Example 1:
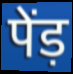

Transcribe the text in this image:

पेंड़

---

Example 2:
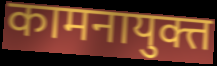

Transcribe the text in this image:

कामनायुक्त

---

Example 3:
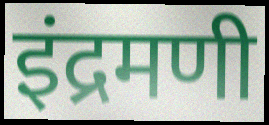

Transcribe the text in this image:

इंद्रमणी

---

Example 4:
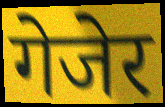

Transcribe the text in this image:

गेजेर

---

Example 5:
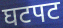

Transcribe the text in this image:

घटपट